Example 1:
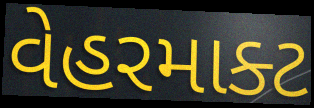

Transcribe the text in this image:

વેહરમાક્ટ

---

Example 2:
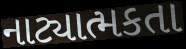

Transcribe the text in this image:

નાટ્યાત્મકતા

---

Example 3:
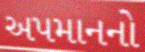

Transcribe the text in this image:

અપમાનનો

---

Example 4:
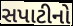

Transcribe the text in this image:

સપાટીનો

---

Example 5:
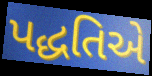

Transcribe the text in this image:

પદ્ધતિએ